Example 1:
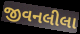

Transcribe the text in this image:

જીવનલીલા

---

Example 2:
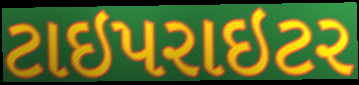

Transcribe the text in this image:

ટાઇપરાઇટર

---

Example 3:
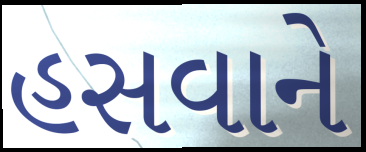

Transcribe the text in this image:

હસવાને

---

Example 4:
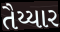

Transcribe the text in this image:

તૈય્યાર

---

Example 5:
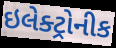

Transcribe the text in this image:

ઇલેક્ટ્રોનીક